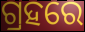
ଗ୍ରହରେ